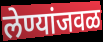
लेण्यांजवळ